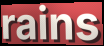
rains